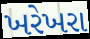
ખરેખરા